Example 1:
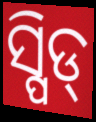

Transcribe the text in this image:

ସ୍ପିଡ୍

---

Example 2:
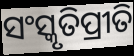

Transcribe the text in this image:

ସଂସ୍କୃତିପ୍ରୀତି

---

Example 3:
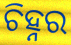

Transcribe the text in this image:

ଚିହ୍ନର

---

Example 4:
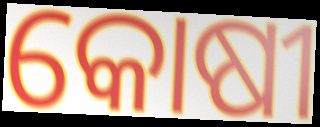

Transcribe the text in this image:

କୋଷୀ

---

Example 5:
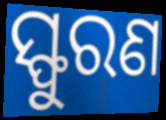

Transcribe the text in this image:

ସ୍ଫୁରଣ